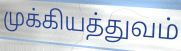
முக்கியத்துவம்